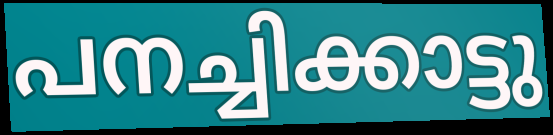
പനച്ചിക്കാട്ടു